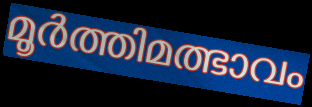
മൂർത്തിമത്ഭാവം